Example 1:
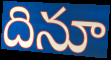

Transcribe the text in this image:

దినూ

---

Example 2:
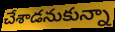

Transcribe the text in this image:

చేశాడనుకున్నా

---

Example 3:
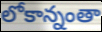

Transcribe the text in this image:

లోకాన్నంతా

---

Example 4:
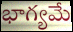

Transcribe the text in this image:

భాగ్యమే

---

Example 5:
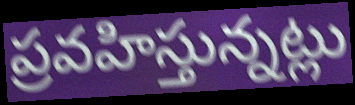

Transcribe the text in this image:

ప్రవహిస్తున్నట్లు